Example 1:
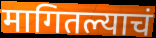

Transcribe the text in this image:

मागितल्याचं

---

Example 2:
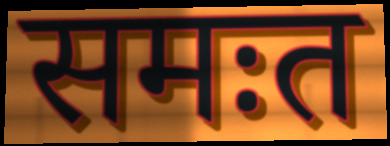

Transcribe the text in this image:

समःत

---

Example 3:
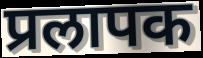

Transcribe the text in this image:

प्रलापक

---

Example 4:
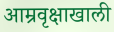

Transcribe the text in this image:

आम्रवृक्षाखाली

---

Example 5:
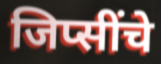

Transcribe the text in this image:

जिप्सींचे